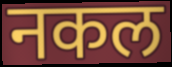
नकल